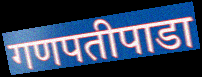
गणपतीपाडा